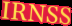
IRNSS